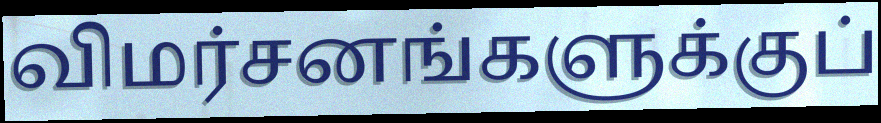
விமர்சனங்களுக்குப்